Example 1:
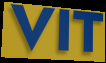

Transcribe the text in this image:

VIT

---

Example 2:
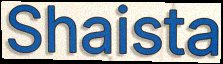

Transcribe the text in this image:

Shaista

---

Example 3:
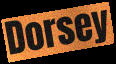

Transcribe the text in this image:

Dorsey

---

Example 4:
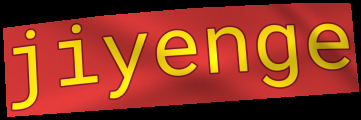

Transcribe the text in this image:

jiyenge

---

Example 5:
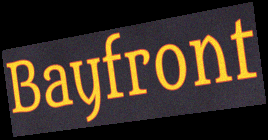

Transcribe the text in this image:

Bayfront